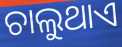
ଚାଲୁଥାଏ